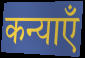
कन्याएँ